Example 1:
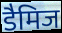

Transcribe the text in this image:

डैमिज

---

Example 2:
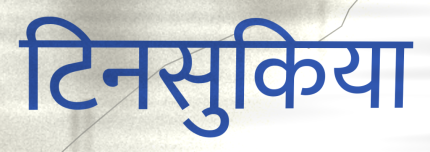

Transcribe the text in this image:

टिनसुकिया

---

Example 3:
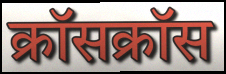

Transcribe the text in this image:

क्रॉसक्रॉस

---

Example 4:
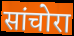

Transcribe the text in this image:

सांचोरा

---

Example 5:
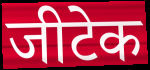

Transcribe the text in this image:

जीटेक